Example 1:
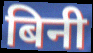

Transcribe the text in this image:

बिनी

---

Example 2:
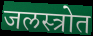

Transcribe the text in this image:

जलस्त्रोत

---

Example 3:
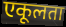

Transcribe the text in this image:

एकूलता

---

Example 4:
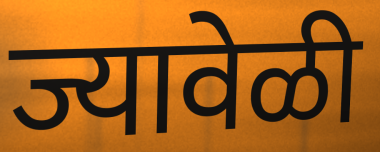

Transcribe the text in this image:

ज्यावेळी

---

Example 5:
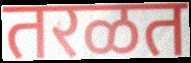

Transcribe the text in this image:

तरळत